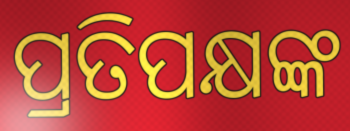
ପ୍ରତିପକ୍ଷଙ୍କ